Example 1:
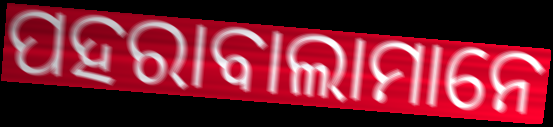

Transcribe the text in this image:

ପହରାବାଲାମାନେ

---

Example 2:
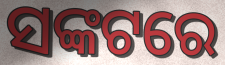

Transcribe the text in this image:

ସଙ୍କଟରେ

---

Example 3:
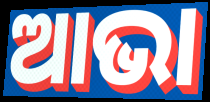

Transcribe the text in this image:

ଆଭା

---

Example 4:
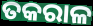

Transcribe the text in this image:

ତକରାଳ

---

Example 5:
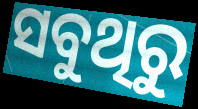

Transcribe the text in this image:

ସବୁଥିରୁ